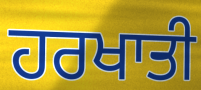
ਹਰਖਾਤੀ